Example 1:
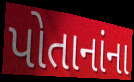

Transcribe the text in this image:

પોતાનાંના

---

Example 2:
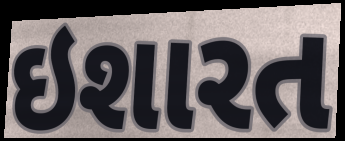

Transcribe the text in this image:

ઇશારત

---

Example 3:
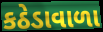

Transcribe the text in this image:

કઠેડાવાળા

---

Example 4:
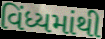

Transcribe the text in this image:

વિંધ્યમાંથી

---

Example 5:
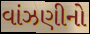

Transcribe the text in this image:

વાંઝણીનો